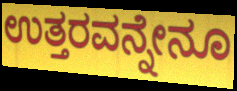
ಉತ್ತರವನ್ನೇನೂ